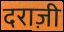
दराज़ी